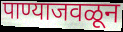
पाण्याजवळून